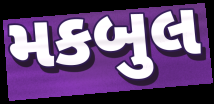
મકબુલ